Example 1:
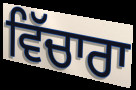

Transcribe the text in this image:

ਵਿੱਚਾਰਾ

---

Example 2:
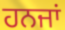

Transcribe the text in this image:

ਹਨਜਾਂ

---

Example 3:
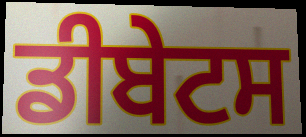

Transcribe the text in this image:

ਡੀਬੇਟਸ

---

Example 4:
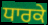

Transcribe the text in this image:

ਧਾਰਕੇ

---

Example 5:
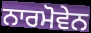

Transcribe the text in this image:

ਨਾਰਮੋਵੇਨ